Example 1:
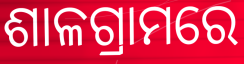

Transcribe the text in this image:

ଶାଳଗ୍ରାମରେ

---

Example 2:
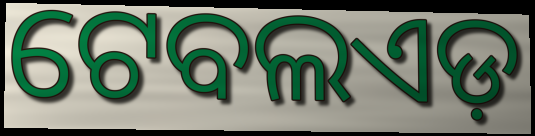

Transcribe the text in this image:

ଟେବଲଏଡ଼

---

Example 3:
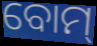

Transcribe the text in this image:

ବୋମ୍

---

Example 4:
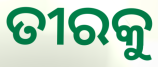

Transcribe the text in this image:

ତୀରକୁ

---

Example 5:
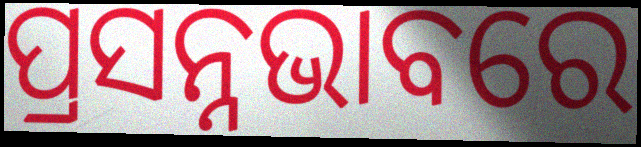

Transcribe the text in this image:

ପ୍ରସନ୍ନଭାବରେ